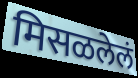
मिसळलेलं